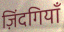
ज़िंदगियाँ